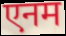
एनम